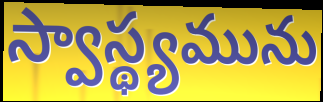
స్వాస్థ్యమును